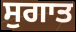
ਸੁਗਾਤ